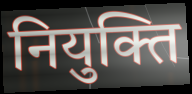
नियुक्ति